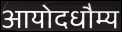
आयोदधौम्य